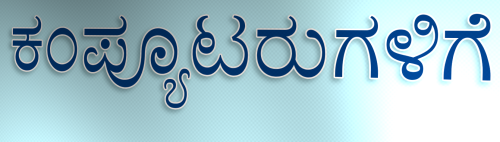
ಕಂಪ್ಯೂಟರುಗಳಿಗೆ